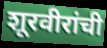
शूरवीरांची